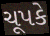
ચૂપકે